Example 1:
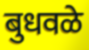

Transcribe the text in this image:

बुधवळे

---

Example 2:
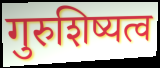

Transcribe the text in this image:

गुरुशिष्यत्व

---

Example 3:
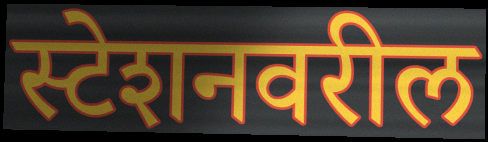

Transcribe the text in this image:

स्टेशनवरील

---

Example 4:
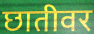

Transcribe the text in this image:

छातीवर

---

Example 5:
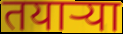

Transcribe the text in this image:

तयाऱ्या